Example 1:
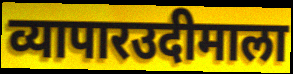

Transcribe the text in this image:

व्यापारउदीमाला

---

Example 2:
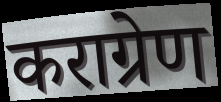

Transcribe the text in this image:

कराग्रेण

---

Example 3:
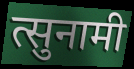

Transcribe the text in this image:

त्सुनामी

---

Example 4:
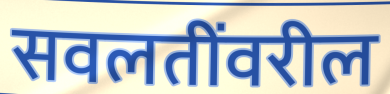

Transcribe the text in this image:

सवलतींवरील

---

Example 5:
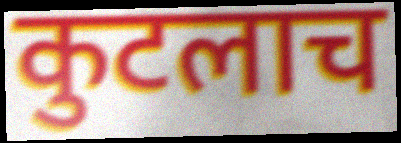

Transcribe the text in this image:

कुटलाच